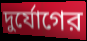
দুর্যোগের